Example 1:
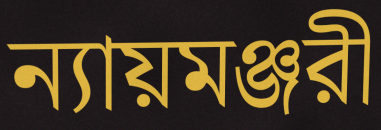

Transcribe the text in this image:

ন্যায়মঞ্জরী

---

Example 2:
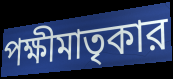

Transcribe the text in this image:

পক্ষীমাতৃকার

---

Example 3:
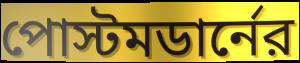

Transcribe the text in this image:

পোস্টমডার্নের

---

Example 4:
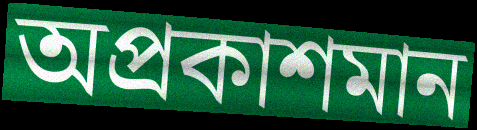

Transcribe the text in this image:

অপ্রকাশমান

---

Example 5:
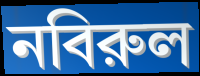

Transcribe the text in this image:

নবিরুল